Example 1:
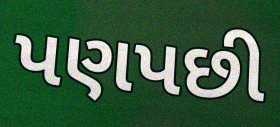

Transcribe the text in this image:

પણપછી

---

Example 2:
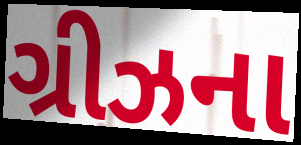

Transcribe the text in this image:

ગ્રીઝના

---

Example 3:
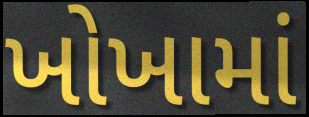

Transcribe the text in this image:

ખોખામાં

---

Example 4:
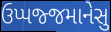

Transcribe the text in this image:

ઉપ્પજ્જમાનેસુ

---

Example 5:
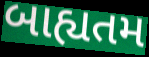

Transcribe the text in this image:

બાહ્યતમ